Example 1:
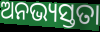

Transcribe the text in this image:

ଅନଭ୍ୟସ୍ତତା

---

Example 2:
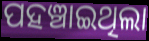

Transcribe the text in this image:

ପହଞ୍ଚାଇଥିଲା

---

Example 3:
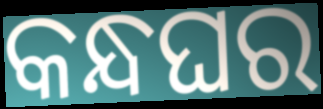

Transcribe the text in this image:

କନ୍ଧଘର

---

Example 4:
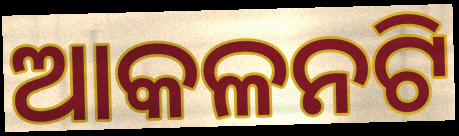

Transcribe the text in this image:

ଆକଳନଟି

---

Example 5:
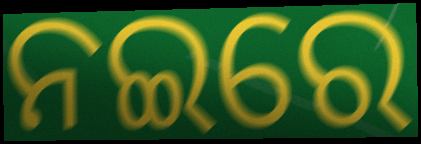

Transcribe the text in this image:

ନଇରେ